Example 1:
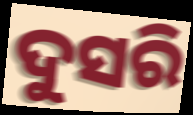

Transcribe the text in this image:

ଦୁସରି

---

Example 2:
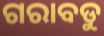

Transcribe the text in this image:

ଗରାବଡୁ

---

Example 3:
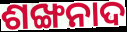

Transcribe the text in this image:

ଶଙ୍ଖନାଦ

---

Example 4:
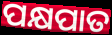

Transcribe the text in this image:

ପକ୍ଷପାତ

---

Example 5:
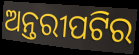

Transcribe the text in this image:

ଅନ୍ତରୀପଟିର